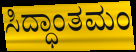
ಸಿದ್ಧಾಂತಮಂ